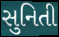
સુનિતી